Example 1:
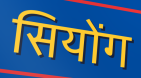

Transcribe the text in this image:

सियोंग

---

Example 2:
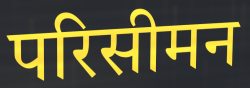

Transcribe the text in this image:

परिसीमन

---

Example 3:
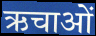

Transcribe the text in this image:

ऋचाओं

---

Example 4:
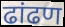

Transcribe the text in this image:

ढांढण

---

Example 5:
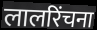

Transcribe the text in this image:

लालरिंचना